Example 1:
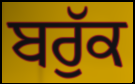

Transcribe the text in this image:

ਬਰੁੱਕ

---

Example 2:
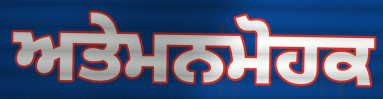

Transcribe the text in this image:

ਅਤੇਮਨਮੋਹਕ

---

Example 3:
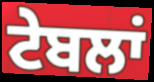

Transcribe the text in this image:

ਟੇਬਲਾਂ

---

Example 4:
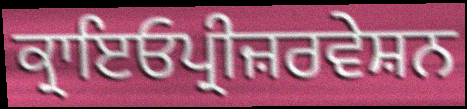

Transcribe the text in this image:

ਕ੍ਰਾਇਓਪ੍ਰੀਜ਼ਰਵੇਸ਼ਨ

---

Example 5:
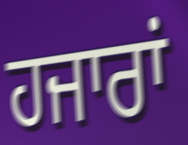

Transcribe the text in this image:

ਹਜਾਰਾਂ